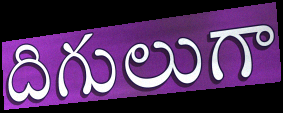
దిగులుగా